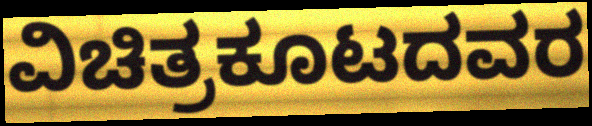
ವಿಚಿತ್ರಕೂಟದವರ